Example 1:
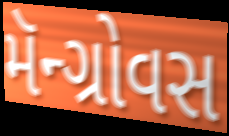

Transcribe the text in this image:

મૅન્ગ્રોવસ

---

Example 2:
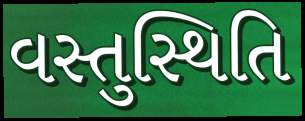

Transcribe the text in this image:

વસ્તુસ્થિતિ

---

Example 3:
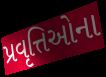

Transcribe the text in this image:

પ્રવૃત્તિઓના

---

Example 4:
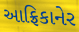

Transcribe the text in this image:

આફ્રિકાનેર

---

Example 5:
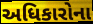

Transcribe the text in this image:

અધિકારોના